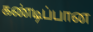
கண்டிப்பான